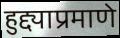
हुद्द्याप्रमाणे